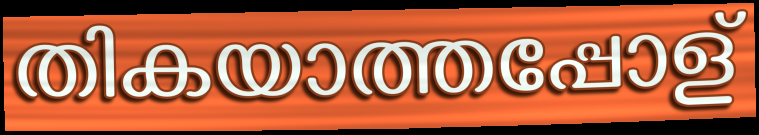
തികയാത്തപ്പോള്